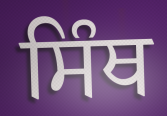
ਸਿੰਥ